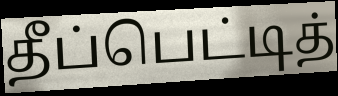
தீப்பெட்டித்